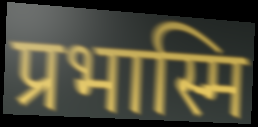
प्रभास्मि